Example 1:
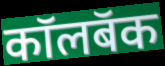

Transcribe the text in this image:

कॉलबॅक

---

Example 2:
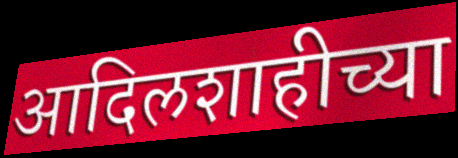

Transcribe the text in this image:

आदिलशाहीच्या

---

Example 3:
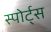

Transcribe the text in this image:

स्पोर्ट्स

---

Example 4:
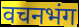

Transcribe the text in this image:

वचनभंग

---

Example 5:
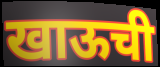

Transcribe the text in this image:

खाऊची